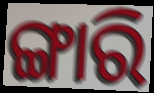
ଙ୍ଗାରି